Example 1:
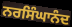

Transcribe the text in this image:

ਨਰਸਿੰਘਾਨੰਦ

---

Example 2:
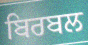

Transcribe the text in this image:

ਬਿਰਬਲ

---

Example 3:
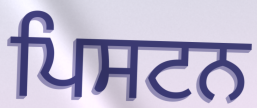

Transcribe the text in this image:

ਪਿਸਟਨ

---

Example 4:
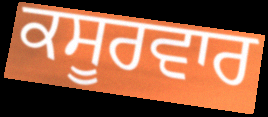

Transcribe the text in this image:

ਕਸੂਰਵਾਰ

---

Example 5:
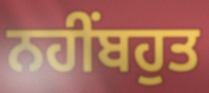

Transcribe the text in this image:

ਨਹੀਂਬਹੁਤ